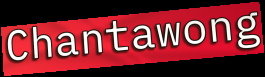
Chantawong